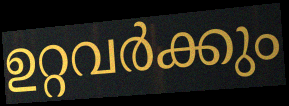
ഉറ്റവർക്കും